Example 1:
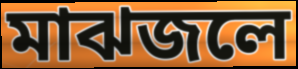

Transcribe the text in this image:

মাঝজলে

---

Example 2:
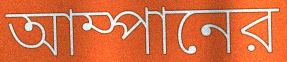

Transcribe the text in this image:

আম্পানের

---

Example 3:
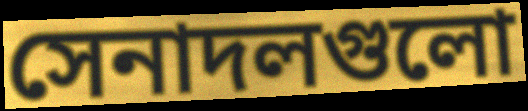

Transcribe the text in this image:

সেনাদলগুলো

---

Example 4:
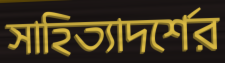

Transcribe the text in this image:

সাহিত্যাদর্শের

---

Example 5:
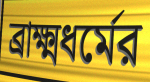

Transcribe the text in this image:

ব্রাক্ষ্মধর্মের